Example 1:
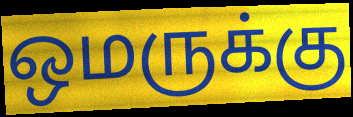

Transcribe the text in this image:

ஒமருக்கு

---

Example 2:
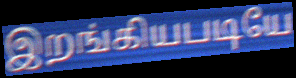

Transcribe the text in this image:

இறங்கியபடியே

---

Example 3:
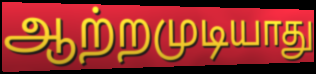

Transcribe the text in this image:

ஆற்றமுடியாது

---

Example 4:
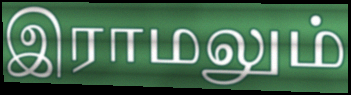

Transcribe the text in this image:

இராமலும்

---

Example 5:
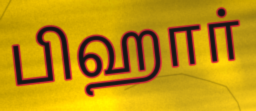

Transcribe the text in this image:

பிஹார்